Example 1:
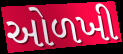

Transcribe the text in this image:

ઓળખી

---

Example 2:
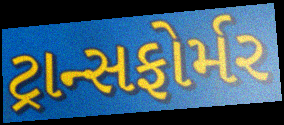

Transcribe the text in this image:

ટ્રાન્સફોર્મર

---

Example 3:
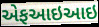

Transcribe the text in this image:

એફઆઇઆઇ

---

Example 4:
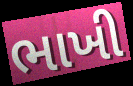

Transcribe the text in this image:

ભાખી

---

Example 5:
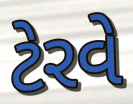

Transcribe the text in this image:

ટેરવે